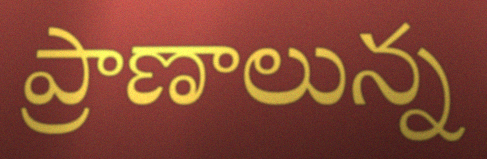
ప్రాణాలున్న